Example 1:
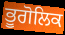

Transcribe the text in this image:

ਭੂਗੋਲਿਕ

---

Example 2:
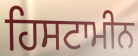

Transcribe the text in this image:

ਹਿਸਟਾਮੀਨ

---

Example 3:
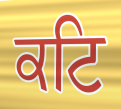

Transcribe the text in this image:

ਕਟਿ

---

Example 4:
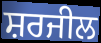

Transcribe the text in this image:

ਸ਼ਰਜੀਲ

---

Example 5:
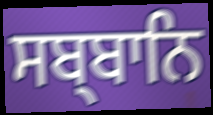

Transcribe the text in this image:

ਸਬ੍ਬਾਨਿ